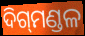
ଦିଗ୍‍ମଣ୍ଡଳ